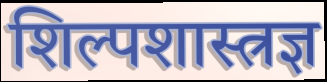
शिल्पशास्त्रज्ञ